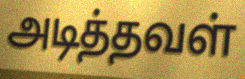
அடித்தவள்